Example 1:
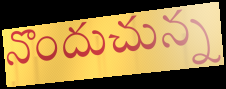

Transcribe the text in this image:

నొందుచున్న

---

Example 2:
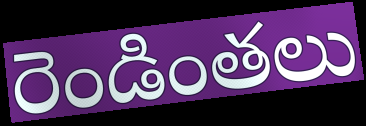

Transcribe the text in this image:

రెండింతలు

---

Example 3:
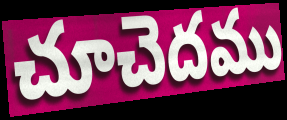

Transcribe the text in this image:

చూచెదము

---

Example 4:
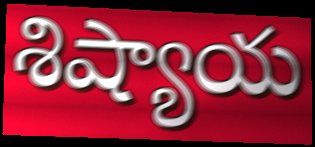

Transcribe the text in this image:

శిష్యాయ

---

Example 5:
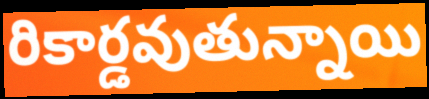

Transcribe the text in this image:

రికార్డవుతున్నాయి